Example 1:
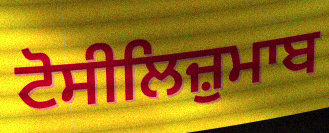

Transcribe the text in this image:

ਟੋਸੀਲਿਜ਼ੁਮਾਬ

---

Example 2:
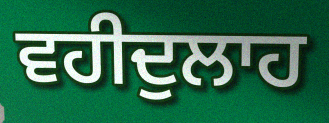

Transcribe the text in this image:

ਵਹੀਦੁਲਾਹ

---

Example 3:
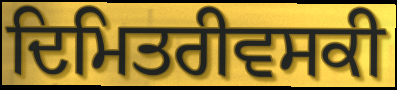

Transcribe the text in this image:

ਦਿਮਿਤਰੀਵਸਕੀ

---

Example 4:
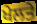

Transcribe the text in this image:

ਖੇਲਤੇ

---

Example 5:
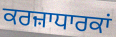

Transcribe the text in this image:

ਕਰਜ਼ਾਧਾਰਕਾਂ